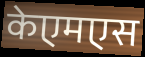
केएमएस